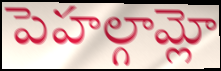
పెహల్గామ్లో